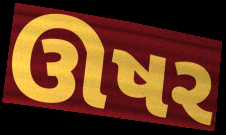
ઊષર